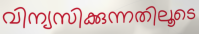
വിന്യസിക്കുന്നതിലൂടെ